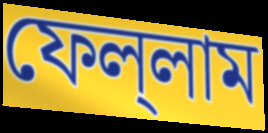
ফেল্‌লাম